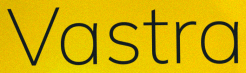
Vastra